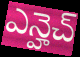
ఎన్హెచ్